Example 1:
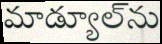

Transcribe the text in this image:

మాడ్యూల్‌ను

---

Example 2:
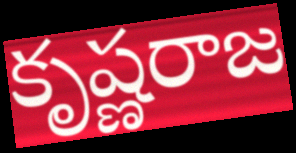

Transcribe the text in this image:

కృష్ణరాజ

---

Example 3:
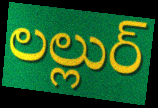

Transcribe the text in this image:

లల్లుర్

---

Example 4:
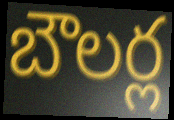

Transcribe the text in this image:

బౌలర్ల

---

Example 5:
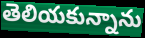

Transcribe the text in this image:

తెలియకున్నాను